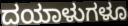
ದಯಾಳುಗಳೂ